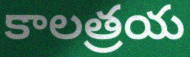
కాలత్రయ